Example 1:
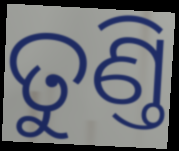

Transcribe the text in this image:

ତୁଣ୍ତି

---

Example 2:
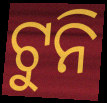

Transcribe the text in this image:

ଟୁନି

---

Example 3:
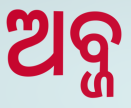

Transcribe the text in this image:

ଅବ୍ଜ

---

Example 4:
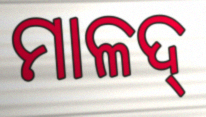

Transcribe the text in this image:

ମାଳଦ୍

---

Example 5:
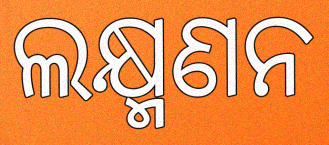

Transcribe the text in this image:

ଲକ୍ଷ୍ମଣନ